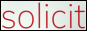
solicit